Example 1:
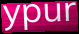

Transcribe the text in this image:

ypur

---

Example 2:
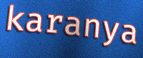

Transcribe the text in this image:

karanya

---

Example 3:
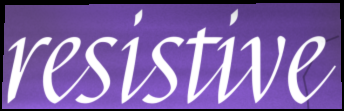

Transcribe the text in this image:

resistive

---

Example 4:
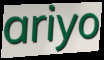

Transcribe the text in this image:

ariyo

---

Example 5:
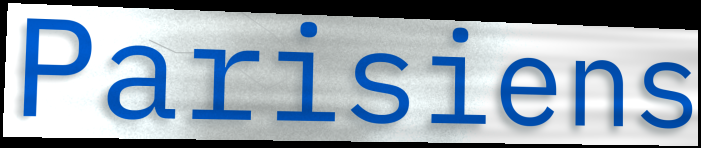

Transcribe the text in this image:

Parisiens